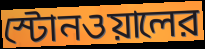
স্টোনওয়ালের